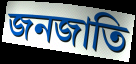
জনজাতি